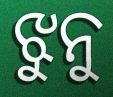
ଝୁନୁ